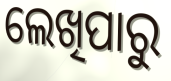
ଲେଖିପାରୁ